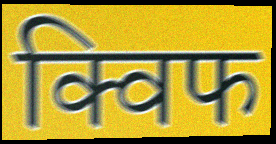
क्विफ